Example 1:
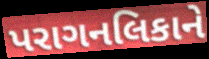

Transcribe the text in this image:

પરાગનલિકાને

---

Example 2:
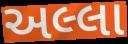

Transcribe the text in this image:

અલ્લા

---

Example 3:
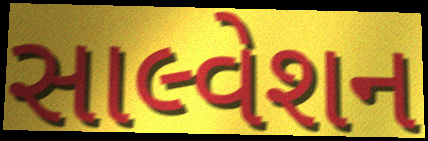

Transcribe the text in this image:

સાલ્વેશન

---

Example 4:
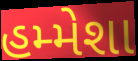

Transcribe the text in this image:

હમ્મેશા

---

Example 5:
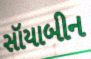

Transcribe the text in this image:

સૉયાબીન